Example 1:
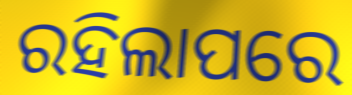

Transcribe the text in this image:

ରହିଲାପରେ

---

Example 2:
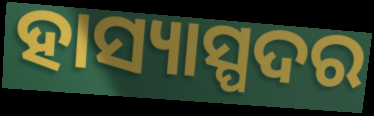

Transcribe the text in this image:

ହାସ୍ୟାସ୍ପଦର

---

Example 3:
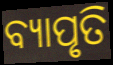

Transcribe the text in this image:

ବ୍ୟାପୃତି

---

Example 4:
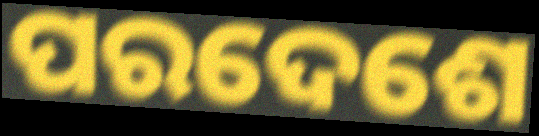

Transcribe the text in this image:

ପରଦେଶେ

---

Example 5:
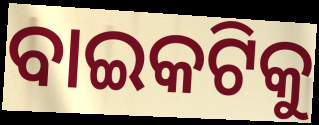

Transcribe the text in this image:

ବାଇକଟିକୁ